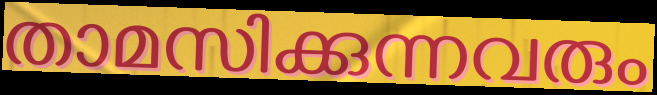
താമസിക്കുന്നവരും